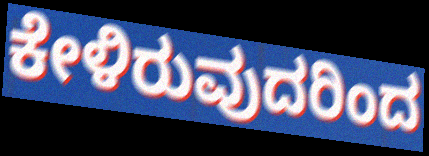
ಕೇಳಿರುವುದರಿಂದ